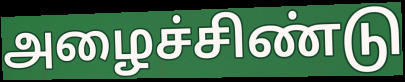
அழைச்சிண்டு